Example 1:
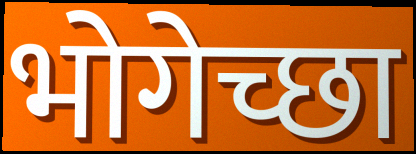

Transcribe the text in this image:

भोगेच्छा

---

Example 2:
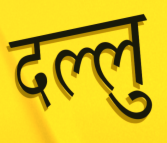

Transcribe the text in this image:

दल्लु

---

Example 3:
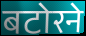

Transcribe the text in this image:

बटोरने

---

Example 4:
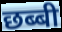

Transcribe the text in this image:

छब्बी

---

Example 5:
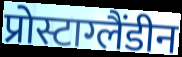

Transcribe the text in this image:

प्रोस्टाग्लैंडीन